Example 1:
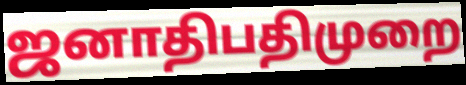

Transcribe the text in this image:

ஜனாதிபதிமுறை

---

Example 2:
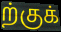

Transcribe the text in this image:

ற்குக்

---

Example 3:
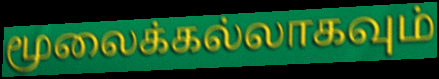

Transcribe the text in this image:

மூலைக்கல்லாகவும்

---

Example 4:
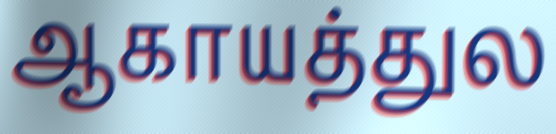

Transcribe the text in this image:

ஆகாயத்துல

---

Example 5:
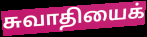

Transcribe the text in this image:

சுவாதியைக்